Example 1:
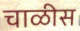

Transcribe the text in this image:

चाळीस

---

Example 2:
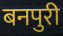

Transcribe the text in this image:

बनपुरी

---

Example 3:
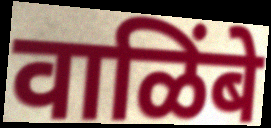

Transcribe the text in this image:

वाळिंबे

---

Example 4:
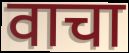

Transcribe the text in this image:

वाचा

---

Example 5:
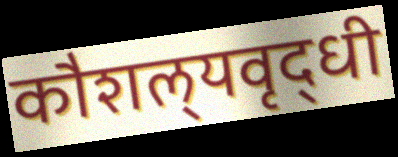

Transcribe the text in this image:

कौशल्यवृद्धी